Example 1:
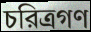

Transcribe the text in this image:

চরিত্রগণ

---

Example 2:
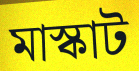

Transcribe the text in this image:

মাস্কাট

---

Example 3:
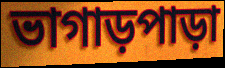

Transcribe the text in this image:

ভাগাড়পাড়া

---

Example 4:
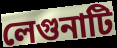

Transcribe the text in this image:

লেগুনাটি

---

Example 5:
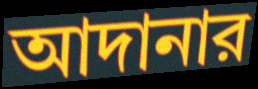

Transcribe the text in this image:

আদানার